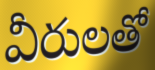
వీరులతో